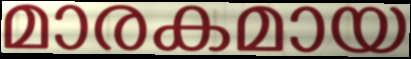
മാരകമായ